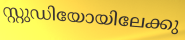
സ്റ്റുഡിയോയിലേക്കു